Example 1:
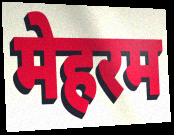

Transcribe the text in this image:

मेहरम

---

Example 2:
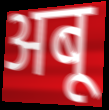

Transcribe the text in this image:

अबू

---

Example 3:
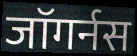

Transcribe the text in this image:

जॉगर्नस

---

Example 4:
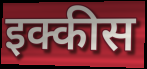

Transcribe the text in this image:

इक्कीस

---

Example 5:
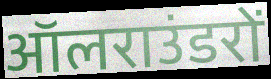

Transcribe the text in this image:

ऑलराउंडरों